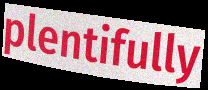
plentifully